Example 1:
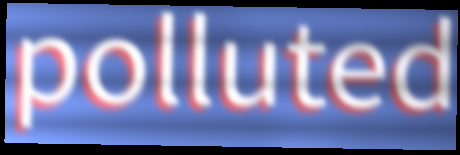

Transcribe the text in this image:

polluted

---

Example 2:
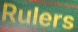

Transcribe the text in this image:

Rulers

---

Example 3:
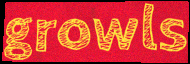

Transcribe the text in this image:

growls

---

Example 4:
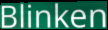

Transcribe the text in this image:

Blinken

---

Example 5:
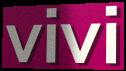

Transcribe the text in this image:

vivi